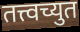
तत्त्वच्युत